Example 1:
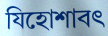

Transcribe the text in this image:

যিহোশাবৎ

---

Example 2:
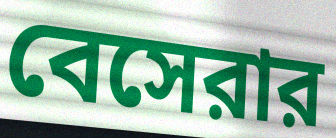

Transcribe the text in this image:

বেসেরার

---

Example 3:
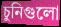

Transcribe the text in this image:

চুনিগুলো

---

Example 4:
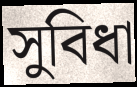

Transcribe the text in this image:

সুবিধা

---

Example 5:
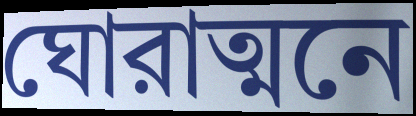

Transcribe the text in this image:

ঘোরাত্মনে